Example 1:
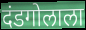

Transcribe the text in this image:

दंडगोलाला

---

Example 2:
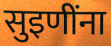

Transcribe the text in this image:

सुइणींना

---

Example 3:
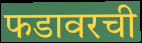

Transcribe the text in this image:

फडावरची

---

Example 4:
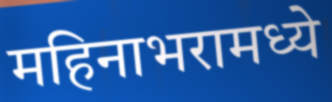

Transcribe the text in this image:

महिनाभरामध्ये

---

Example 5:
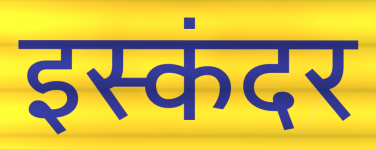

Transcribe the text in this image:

इस्कंदर